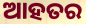
ଆହତର